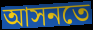
আসনতে